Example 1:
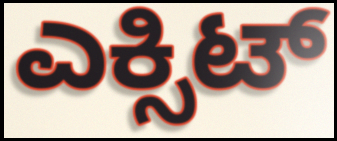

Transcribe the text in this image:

ಎಕ್ಸಿಟ್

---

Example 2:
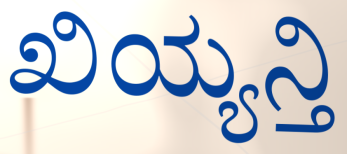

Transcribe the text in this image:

ಖಿಯ್ಯನ್ತಿ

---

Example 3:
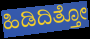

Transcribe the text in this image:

ಹಿಡಿದಿತ್ತೋ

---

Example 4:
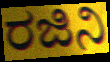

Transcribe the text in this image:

ರಜಿನಿ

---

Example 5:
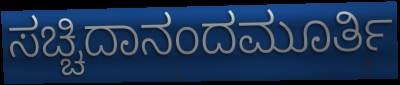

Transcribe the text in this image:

ಸಚ್ಚಿದಾನಂದಮೂರ್ತಿ